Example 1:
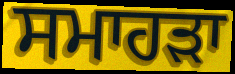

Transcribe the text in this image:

ਸਮਾਹੜਾ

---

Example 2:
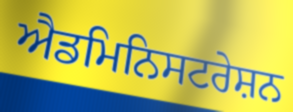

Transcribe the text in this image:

ਐਡਮਿਨਿਸਟਰੇਸ਼ਨ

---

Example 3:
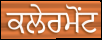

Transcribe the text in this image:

ਕਲੇਰਮੋਂਟ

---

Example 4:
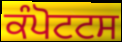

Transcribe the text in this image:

ਕੰਪੋਟਟਸ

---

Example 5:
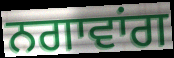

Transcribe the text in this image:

ਨਗਾਵਾਂਗ